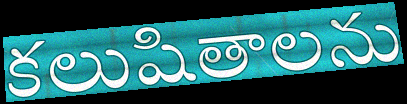
కలుషితాలను